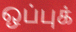
ஒப்புக்